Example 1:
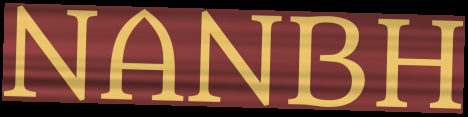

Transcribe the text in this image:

NANBH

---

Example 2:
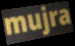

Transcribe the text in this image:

mujra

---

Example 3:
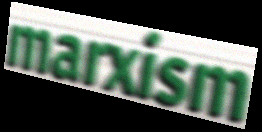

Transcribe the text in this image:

marxism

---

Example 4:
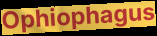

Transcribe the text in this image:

Ophiophagus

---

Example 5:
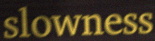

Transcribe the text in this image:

slowness